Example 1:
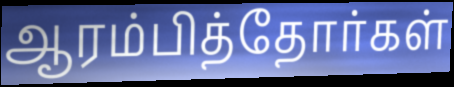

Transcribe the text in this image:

ஆரம்பித்தோர்கள்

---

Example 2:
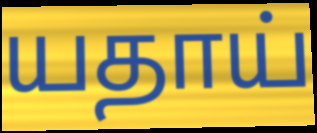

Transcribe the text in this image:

யதாய்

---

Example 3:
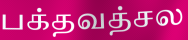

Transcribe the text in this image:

பக்தவத்சல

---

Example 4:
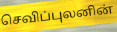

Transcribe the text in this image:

செவிப்புலனின்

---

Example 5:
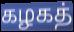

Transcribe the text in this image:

கழகத்